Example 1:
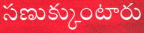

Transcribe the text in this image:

సణుక్కుంటారు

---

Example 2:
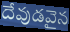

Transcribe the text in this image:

దేవుడవైన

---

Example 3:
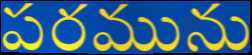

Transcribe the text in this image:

పరమును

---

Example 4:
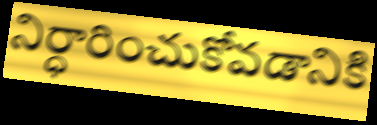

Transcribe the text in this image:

నిర్ధారించుకోవడానికి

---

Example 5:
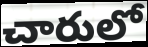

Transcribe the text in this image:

చారులో